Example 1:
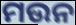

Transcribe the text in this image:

ମଉନ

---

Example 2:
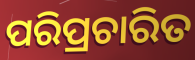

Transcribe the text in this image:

ପରିପ୍ରଚାରିତ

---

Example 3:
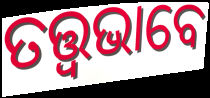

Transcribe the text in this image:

ତତ୍ତ୍ଵଭାବେ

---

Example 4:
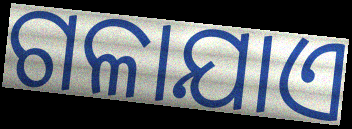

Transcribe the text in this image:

ଗଳାଯାଏ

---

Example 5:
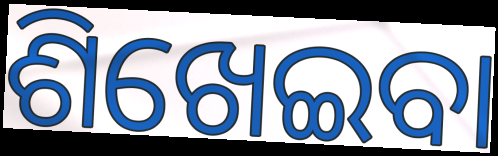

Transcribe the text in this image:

ଶିଖେଇବା